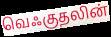
வெஃகுதலின்